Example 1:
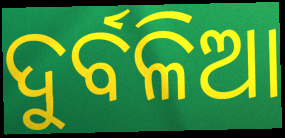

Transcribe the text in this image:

ଦୁର୍ବଳିଆ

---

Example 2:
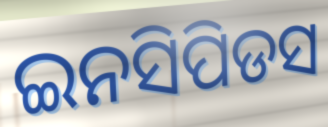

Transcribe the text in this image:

ଇନସିପିଡସ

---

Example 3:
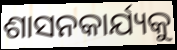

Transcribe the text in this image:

ଶାସନକାର୍ଯ୍ୟକୁ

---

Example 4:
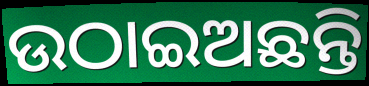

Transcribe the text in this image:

ଉଠାଇଅଛନ୍ତି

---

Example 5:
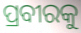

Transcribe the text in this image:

ପ୍ରବୀରକୁ